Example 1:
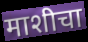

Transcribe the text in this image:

माशीचा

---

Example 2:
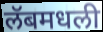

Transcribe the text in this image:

लॅबमधली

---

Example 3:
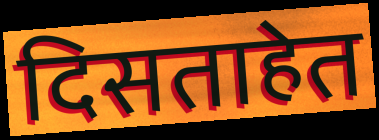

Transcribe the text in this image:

दिसताहेत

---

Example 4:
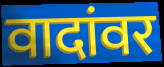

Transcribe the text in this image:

वादांवर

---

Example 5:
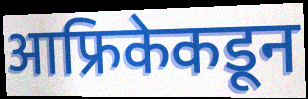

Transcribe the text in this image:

आफ्रिकेकडून